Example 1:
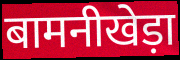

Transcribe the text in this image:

बामनीखेड़ा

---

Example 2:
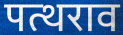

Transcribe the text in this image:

पत्थराव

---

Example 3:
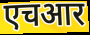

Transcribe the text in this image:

एचआर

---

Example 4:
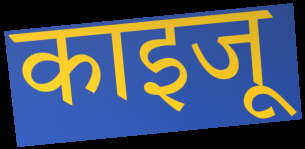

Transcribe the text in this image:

काइजू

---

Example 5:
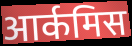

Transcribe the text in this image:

आर्कमिस